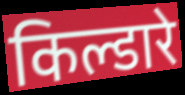
किल्डारे